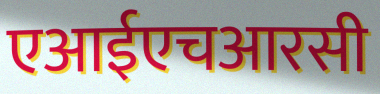
एआईएचआरसी